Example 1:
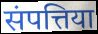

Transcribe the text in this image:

संपत्तिया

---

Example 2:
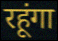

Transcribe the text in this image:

रहूंगा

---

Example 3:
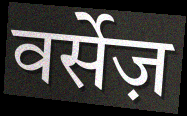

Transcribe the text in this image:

वर्सेज़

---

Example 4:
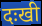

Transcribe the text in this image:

दःखी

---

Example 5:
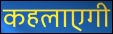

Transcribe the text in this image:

कहलाएगी